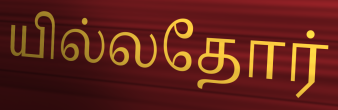
யில்லதோர்